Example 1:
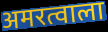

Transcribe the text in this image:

अमरत्वाला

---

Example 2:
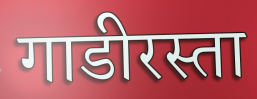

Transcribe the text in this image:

गाडीरस्ता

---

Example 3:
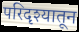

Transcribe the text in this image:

परिदृश्यातून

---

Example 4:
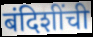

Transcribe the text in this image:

बंदिशींची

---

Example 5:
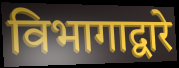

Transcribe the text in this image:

विभागाद्वारे